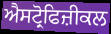
ਐਸਟ੍ਰੋਫਿਜ਼ੀਕਲ